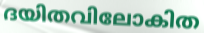
ദയിതവിലോകിത